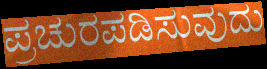
ಪ್ರಚುರಪಡಿಸುವುದು